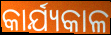
କାର୍ଯ୍ୟକାଳ